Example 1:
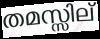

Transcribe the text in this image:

തമസ്സില്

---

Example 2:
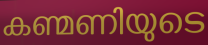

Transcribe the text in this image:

കണ്മണിയുടെ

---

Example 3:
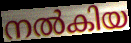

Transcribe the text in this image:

നൽകിയ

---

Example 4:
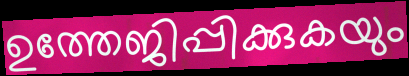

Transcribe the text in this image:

ഉത്തേജിപ്പിക്കുകയും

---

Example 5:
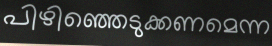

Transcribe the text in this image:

പിഴിഞ്ഞെടുക്കണമെന്ന